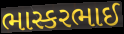
ભાસ્કરભાઈ